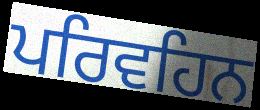
ਪਰਿਵਹਿਨ